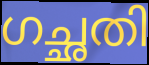
ഗച്ഛതി